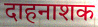
दाहनाशक